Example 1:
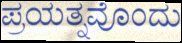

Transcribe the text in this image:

ಪ್ರಯತ್ನವೊಂದು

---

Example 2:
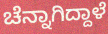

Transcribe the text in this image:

ಚೆನ್ನಾಗಿದ್ದಾಳೆ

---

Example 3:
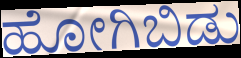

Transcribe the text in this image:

ಹೋಗಿಬಿಡು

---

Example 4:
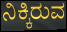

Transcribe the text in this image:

ನಿಕ್ಕಿರುವ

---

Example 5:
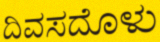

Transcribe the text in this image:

ದಿವಸದೊಳು